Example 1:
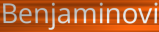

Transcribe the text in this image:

Benjaminovi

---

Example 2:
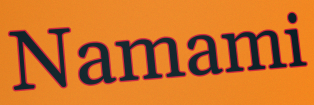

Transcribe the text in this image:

Namami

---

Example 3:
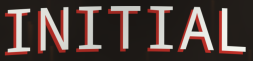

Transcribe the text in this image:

INITIAL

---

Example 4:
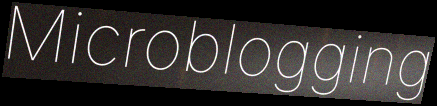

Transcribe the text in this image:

Microblogging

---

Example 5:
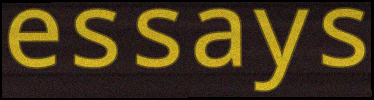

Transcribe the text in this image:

essays